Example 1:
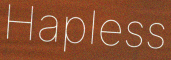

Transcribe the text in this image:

Hapless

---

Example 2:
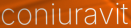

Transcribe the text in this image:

coniuravit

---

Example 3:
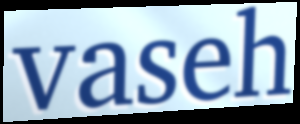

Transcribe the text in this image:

vaseh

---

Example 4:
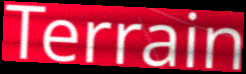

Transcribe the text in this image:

Terrain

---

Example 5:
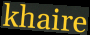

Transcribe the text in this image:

khaire